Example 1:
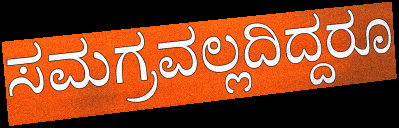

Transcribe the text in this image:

ಸಮಗ್ರವಲ್ಲದಿದ್ದರೂ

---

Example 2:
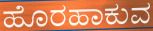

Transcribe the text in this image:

ಹೊರಹಾಕುವ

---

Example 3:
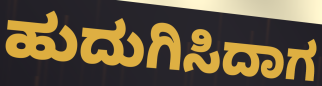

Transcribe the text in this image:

ಹುದುಗಿಸಿದಾಗ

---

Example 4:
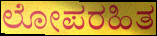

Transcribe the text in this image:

ಲೋಪರಹಿತ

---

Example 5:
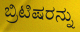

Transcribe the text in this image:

ಬ್ರಿಟಿಷರನ್ನು